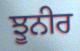
ਝੂਨੀਰ